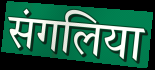
संगलिया